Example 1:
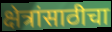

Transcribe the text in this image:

क्षेत्रांसाठीचा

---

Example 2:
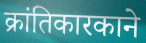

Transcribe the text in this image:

क्रांतिकारकाने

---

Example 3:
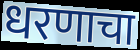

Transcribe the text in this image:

धरणाचा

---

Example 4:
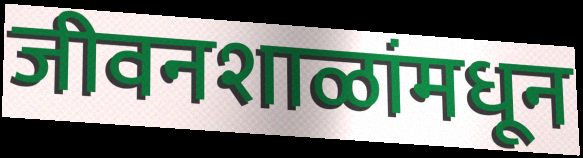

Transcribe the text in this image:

जीवनशाळांमधून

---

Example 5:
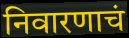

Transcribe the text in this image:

निवारणाचं